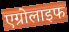
एग्रोलाइफ